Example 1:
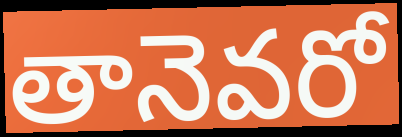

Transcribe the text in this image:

తానెవరో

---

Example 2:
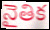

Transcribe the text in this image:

నైతిక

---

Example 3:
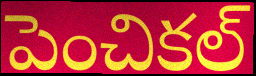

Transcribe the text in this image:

పెంచికల్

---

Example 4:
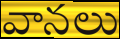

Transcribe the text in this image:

వానలు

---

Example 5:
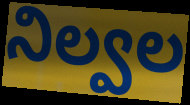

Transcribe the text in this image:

నిల్వల